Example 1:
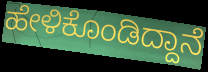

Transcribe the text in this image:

ಹೇಳಿಕೊಂಡಿದ್ದಾನೆ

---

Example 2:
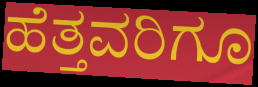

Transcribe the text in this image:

ಹೆತ್ತವರಿಗೂ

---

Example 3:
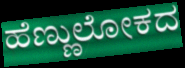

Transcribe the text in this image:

ಹೆಣ್ಣುಲೋಕದ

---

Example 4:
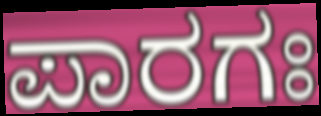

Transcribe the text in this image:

ಪಾರಗಃ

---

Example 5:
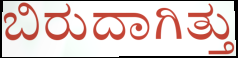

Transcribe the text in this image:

ಬಿರುದಾಗಿತ್ತು